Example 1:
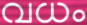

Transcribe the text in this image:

വധം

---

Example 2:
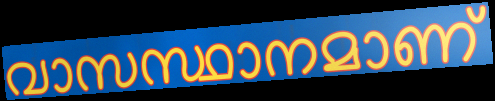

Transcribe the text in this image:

വാസസ്ഥാനമാണ്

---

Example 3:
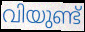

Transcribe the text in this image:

വിയുണ്ട്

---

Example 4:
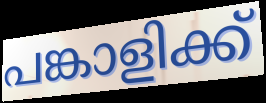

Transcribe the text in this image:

പങ്കാളിക്ക്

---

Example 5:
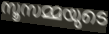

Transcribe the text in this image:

സൂസമ്മയുടെ